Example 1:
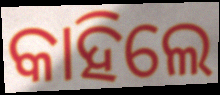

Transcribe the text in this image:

କାହିଲେ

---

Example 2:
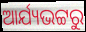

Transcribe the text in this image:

ଆର୍ଯ୍ୟଭଟ୍ଟରୁ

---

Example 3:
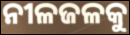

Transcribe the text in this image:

ନୀଳଜଳକୁ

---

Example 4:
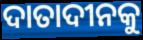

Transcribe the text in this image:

ଦାତାଦୀନକୁ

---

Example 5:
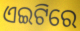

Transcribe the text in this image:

ଏଇଟିରେ